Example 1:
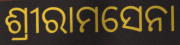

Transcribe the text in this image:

ଶ୍ରୀରାମସେନା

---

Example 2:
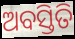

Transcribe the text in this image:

ଅବସ୍ତିତି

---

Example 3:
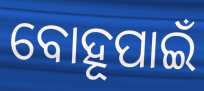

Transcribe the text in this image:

ବୋହୂପାଇଁ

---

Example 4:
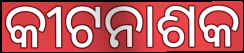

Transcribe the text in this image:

କୀଟନାଶକ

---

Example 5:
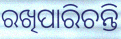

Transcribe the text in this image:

ରଖିପାରିଚନ୍ତି